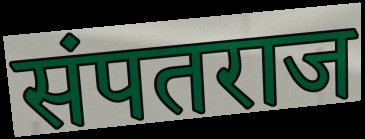
संपतराज